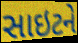
સાઇટને